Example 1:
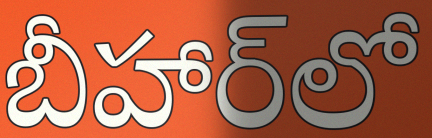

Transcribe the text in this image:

బీహార్‌లో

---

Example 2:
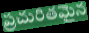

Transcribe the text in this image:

ప్రచురితమైన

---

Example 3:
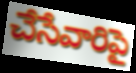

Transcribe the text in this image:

చేసేవారిపై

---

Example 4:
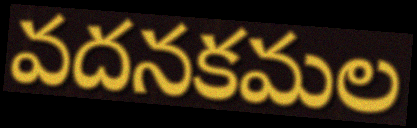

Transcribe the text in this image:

వదనకమల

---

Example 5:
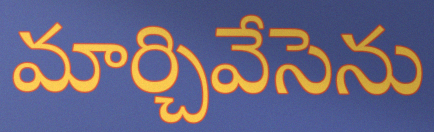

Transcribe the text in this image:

మార్చివేసెను